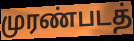
முரண்படத்